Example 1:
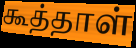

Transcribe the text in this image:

கூத்தாள்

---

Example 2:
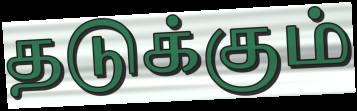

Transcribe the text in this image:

தடுக்கும்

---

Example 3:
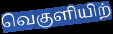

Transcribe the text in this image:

வெகுளியிற்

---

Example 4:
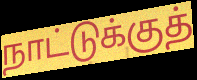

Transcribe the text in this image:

நாட்டுக்குத்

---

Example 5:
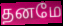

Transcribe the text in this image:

தனமே